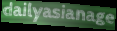
dailyasianage